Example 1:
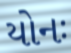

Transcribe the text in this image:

યોનઃ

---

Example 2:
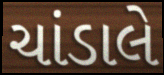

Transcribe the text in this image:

ચાંડાલે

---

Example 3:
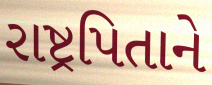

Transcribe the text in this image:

રાષ્ટ્રપિતાને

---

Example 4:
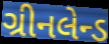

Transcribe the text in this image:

ગ્રીનલેન્ડ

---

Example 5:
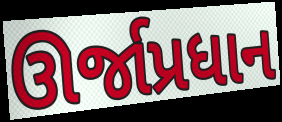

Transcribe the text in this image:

ઊર્જાપ્રધાન